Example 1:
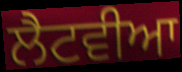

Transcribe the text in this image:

ਲੈਟਵੀਆ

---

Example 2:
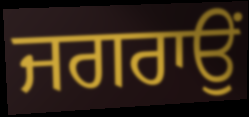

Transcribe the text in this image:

ਜਗਰਾਉਂ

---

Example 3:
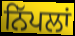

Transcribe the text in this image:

ਨਿੱਪਲਾਂ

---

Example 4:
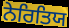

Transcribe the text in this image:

ਨੇਰਿਤਿਯ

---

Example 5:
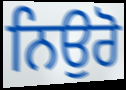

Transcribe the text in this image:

ਨਿਉਰੋ